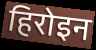
हिरोइन